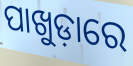
ପାଖୁଡ଼ାରେ